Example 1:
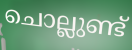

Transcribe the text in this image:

ചൊല്ലുണ്ട്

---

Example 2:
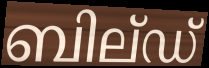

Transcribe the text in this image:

ബില്ഡ്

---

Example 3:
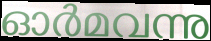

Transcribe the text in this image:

ഓർമവന്നു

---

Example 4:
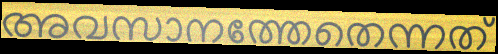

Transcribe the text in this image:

അവസാനത്തേതെന്നത്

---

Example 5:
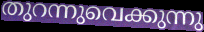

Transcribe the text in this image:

തുറന്നുവെക്കുന്നു